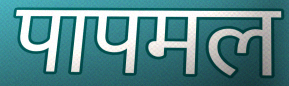
पापमल